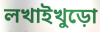
লখাইখুড়ো